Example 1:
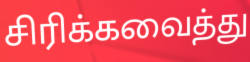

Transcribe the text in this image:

சிரிக்கவைத்து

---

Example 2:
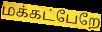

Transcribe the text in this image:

மக்கட்பேறே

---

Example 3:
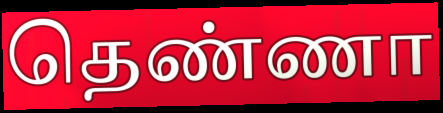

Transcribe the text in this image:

தெண்ணா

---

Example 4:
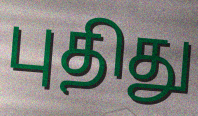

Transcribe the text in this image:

புதிது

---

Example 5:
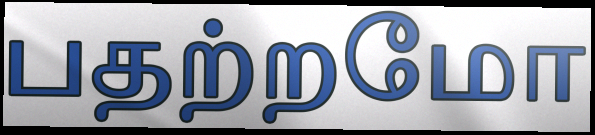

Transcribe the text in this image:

பதற்றமோ